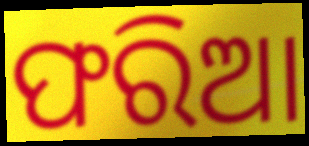
ଫରିଆ